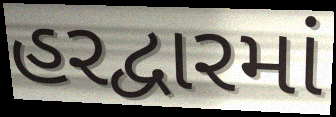
હરદ્વારમાં